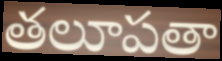
తలూపతా